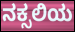
ನಕ್ಸಲಿಯ